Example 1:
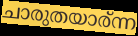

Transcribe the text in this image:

ചാരുതയാര്ന്ന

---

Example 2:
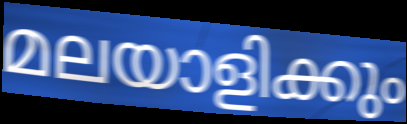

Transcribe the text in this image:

മലയാളിക്കും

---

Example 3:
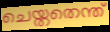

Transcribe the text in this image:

ചെയ്തതെന്ത്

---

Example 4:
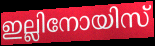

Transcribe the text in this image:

ഇല്ലിനോയിസ്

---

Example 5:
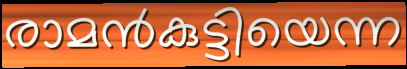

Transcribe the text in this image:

രാമൻകുട്ടിയെന്ന